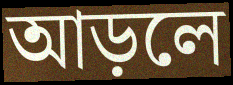
আড়লে